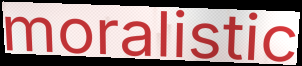
moralistic